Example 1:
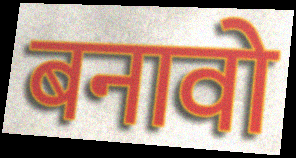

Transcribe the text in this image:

बनावो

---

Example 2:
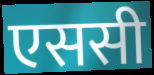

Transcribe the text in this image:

एससी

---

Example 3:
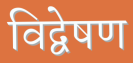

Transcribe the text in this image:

विद्वेषण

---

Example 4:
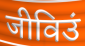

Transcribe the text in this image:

जीविउं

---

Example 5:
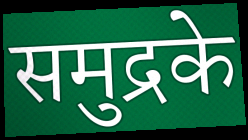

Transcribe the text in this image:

समुद्रके